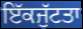
ਇੱਕਜੁੱਟਤਾ